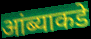
आंब्याकडे